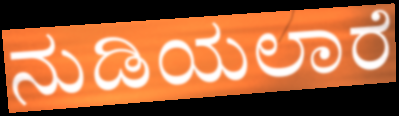
ನುಡಿಯಲಾರೆ